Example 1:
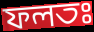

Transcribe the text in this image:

ফলতঃ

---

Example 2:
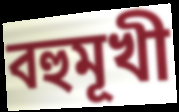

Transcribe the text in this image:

বহুমূখী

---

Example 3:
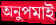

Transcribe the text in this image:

অনুপমাই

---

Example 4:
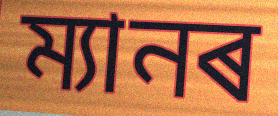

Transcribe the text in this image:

ম্যানৰ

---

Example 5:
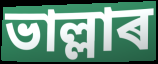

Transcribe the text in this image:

ভাল্লাৰ